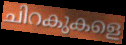
ചിറകുകളെ